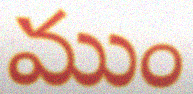
ముం